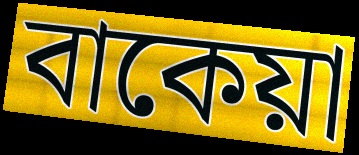
বাকেয়া